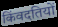
किंवदतियों